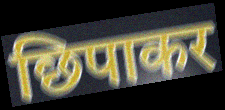
छिपाकर